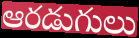
ఆరడుగులు